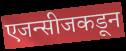
एजन्सीजकडून